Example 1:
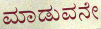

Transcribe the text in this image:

ಮಾಡುವನೇ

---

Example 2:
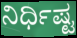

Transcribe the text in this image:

ನಿರ್ಧಿಷ್ಟ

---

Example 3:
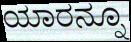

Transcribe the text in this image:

ಯಾರನ್ನೂ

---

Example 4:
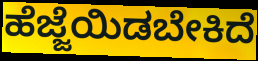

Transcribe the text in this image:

ಹೆಜ್ಜೆಯಿಡಬೇಕಿದೆ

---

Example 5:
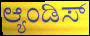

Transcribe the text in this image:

ಆ್ಯಂಡಿಸ್